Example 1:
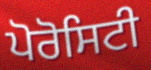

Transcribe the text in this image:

ਪੋਰੋਸਿਟੀ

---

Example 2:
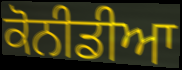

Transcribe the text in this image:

ਕੋਨੀਡੀਆ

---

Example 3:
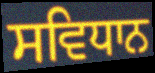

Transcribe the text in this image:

ਸਵਿਧਾਨ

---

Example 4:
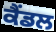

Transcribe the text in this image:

ਕੈਂਡਲ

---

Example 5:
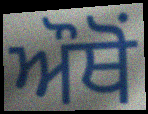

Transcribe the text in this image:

ਔਥੋਂ